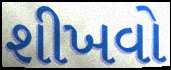
શીખવો